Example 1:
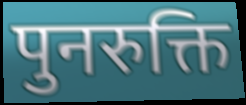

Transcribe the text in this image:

पुनरुक्ति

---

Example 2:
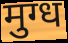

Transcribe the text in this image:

मुग्ध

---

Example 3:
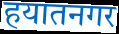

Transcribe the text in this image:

हयातनगर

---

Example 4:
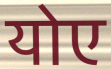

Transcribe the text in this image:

योए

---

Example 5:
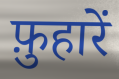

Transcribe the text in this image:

फ़ुहारें